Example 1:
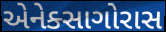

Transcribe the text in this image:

એનેક્સાગોરાસ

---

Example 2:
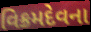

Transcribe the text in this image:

વિક્રમદેવના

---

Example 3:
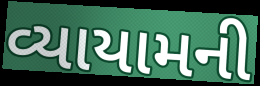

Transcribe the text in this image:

વ્યાયામની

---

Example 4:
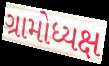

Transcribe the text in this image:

ગ્રામોધ્યક્ષ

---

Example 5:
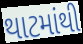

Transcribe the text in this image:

થાટમાંથી